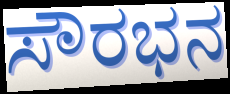
ಸೌರಭನ